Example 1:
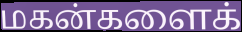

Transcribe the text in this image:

மகன்களைக்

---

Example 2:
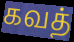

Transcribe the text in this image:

கவத்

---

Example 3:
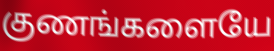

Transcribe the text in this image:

குணங்களையே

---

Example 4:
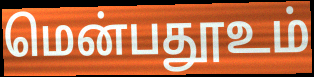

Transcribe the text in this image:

மென்பதூஉம்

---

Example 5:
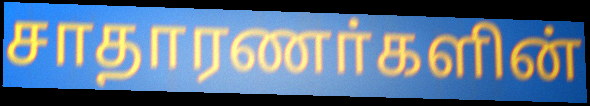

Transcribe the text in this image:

சாதாரணர்களின்